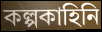
কল্পকাহিনি